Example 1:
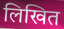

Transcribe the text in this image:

लिखित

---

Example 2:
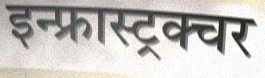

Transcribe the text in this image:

इन्फ्रास्ट्रक्‍चर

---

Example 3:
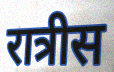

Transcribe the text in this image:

रात्रीस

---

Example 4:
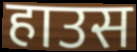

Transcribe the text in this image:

हाउस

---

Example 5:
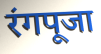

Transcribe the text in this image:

रंगपूजा